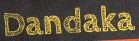
Dandaka